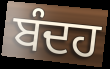
ਬੰਦਹ